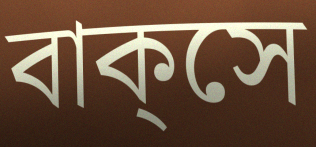
বাক্‌সে